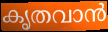
കൃതവാൻ